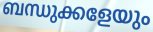
ബന്ധുക്കളേയും